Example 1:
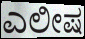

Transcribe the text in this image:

ಎಲೀಷ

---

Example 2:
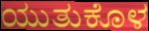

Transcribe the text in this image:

ಯುತುಕೊಳ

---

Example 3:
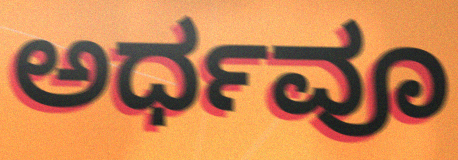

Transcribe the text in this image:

ಅರ್ಧವೂ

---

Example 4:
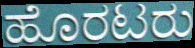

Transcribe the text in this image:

ಹೊರಟರು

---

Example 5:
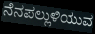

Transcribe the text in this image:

ನೆನಪಲ್ಲುಳಿಯುವ